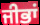
ਜੀਭਾਂ